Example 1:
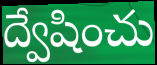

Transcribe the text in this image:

ద్వేషించు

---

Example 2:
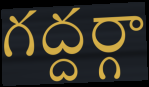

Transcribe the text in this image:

గద్దర్గా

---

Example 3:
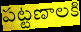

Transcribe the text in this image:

పట్టణాలకి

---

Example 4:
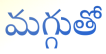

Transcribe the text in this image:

మగ్గుతో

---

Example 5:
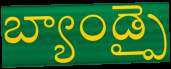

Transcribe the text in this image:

బ్యాండ్పై